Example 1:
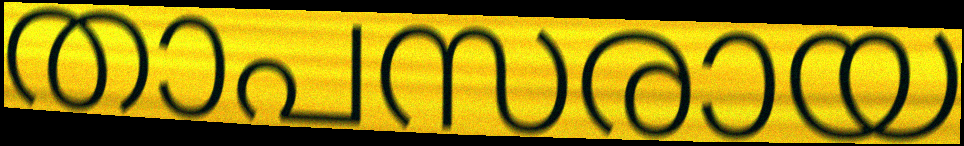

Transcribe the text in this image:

താപസരായ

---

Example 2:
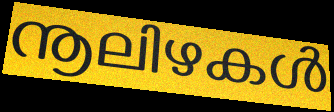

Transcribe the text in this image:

നൂലിഴകൾ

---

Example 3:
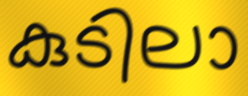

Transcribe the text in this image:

കുടിലാ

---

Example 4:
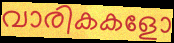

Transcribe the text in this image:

വാരികകളോ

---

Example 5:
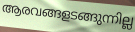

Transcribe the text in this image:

ആരവങ്ങളടങ്ങുന്നില്ല